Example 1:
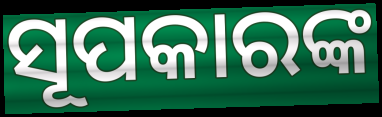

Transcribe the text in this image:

ସୂପକାରଙ୍କ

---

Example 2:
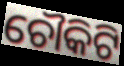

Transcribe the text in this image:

ଚୌକିଟି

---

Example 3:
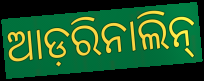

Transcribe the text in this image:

ଆଡ଼ରିନାଲିନ୍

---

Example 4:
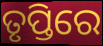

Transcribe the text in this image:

ତୃପ୍ତିରେ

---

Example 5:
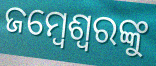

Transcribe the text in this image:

ଜମ୍ବେଶ୍ୱରଙ୍କୁ